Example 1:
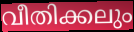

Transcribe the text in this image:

വീതിക്കലും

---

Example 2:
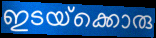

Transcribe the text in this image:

ഇടയ്‌ക്കൊരു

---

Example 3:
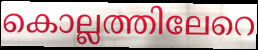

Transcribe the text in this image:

കൊല്ലത്തിലേറെ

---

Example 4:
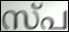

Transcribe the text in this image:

സ്പ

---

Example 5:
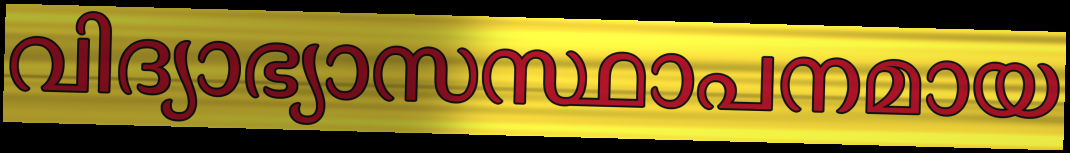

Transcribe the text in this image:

വിദ്യാഭ്യാസസ്ഥാപനമായ